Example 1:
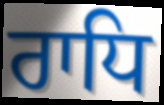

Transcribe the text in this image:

ਰਾਧਿ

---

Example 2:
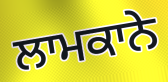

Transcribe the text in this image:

ਲਾਮਕਾਨੇ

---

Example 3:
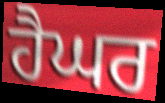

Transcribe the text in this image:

ਹੈਘਰ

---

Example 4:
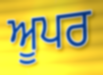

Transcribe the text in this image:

ਅੂਪਰ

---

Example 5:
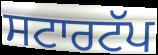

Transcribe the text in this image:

ਸਟਾਰਟੱਪ